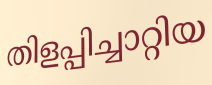
തിളപ്പിച്ചാറ്റിയ